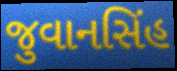
જુવાનસિંહ